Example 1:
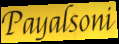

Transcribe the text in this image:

Payalsoni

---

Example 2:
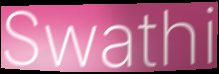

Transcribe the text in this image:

Swathi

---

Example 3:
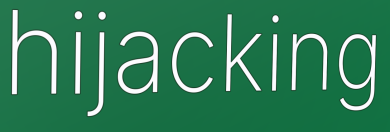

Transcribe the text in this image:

hijacking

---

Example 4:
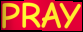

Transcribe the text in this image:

PRAY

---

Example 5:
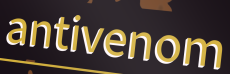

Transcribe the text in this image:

antivenom